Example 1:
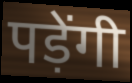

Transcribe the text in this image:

पड़ेंगी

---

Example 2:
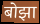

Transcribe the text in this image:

बोझा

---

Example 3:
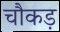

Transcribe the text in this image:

चौकड़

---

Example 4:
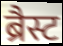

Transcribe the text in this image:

ब्रैस्ट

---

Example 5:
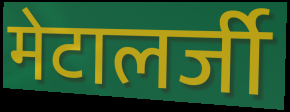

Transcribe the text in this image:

मेटालर्जी